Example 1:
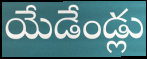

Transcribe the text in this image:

యేడేండ్లు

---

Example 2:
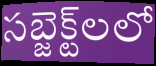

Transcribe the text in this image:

సబ్జెక్ట్‌లలో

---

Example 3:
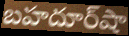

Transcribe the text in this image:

బహదూర్‌షా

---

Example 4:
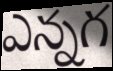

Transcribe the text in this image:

ఎన్నగ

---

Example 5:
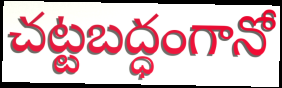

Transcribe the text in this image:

చట్టబద్ధంగానో